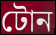
টোন